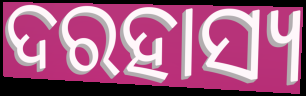
ଦରହାସ୍ୟ